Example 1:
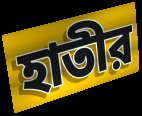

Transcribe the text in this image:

হাতীর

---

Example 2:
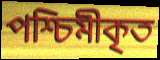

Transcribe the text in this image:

পশ্চিমীকৃত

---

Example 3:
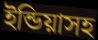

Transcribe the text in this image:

ইন্ডিয়াসহ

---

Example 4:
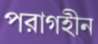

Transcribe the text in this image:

পরাগহীন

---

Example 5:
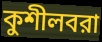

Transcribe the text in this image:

কুশীলবরা